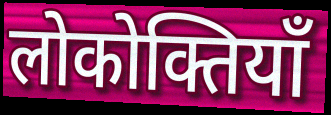
लोकोक्तियाँ